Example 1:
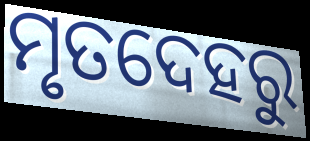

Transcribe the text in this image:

ମୃତଦେହରୁ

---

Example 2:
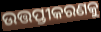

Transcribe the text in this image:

ଉତ୍ତପ୍ତୀକରଣକୁ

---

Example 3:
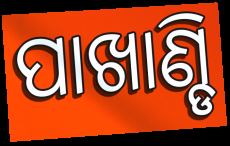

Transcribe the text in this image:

ପାଖାଣ୍ଡି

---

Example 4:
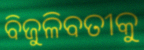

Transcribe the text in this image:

ବିଜୁଳିବତୀକୁ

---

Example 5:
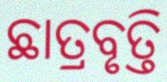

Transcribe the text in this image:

ଛାତ୍ରବୃତ୍ତି